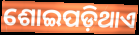
ଶୋଇପଡ଼ିଥାଏ